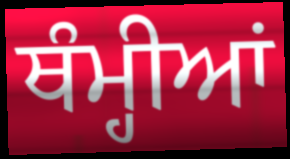
ਥੰਮ੍ਹੀਆਂ